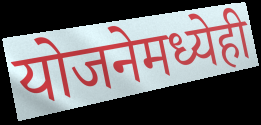
योजनेमध्येही